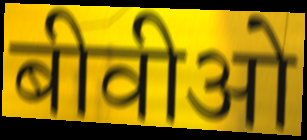
बीवीओ